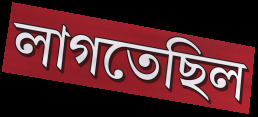
লাগতেছিল